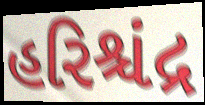
હરિશ્ચંદ્ર